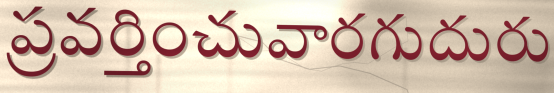
ప్రవర్తించువారగుదురు